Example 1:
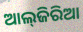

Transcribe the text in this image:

ଆଲ୍‌ଜିରିଆ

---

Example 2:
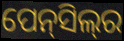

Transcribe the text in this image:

ପେନ୍‍ସିଲ୍‍ର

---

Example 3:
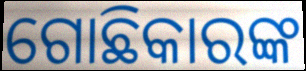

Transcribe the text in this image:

ଗୋଛିକାରଙ୍କ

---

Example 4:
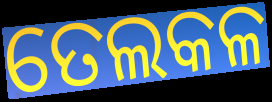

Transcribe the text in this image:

ତେଲକଳ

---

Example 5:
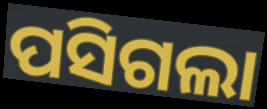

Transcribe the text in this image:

ପସିଗଲା